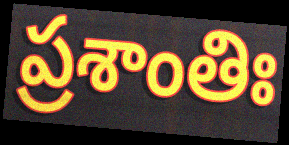
ప్రశాంతిః